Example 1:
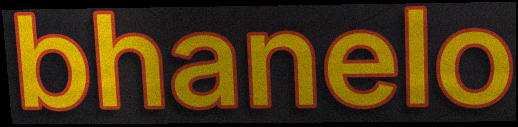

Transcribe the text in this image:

bhanelo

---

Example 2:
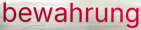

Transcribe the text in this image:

bewahrung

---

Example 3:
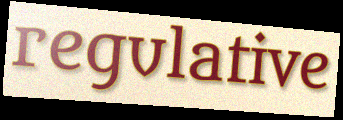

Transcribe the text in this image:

regulative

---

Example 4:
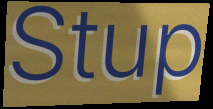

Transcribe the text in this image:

Stup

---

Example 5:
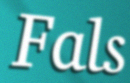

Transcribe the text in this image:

Fals